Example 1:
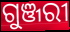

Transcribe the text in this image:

ଗୁଞ୍ଜରୀ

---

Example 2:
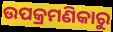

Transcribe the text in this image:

ଉପକ୍ରମଣିକାରୁ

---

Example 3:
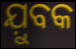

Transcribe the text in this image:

ଯ଼ୁବକ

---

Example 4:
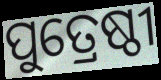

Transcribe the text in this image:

ପୁତ୍ରେଷ୍ଠୀ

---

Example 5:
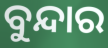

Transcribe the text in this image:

ବୁନ୍ଦାର